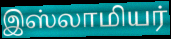
இஸ்லாமியர்